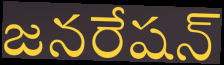
జనరేషన్